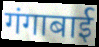
गंगाबाई